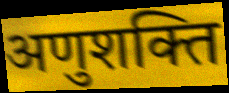
अणुशक्ति